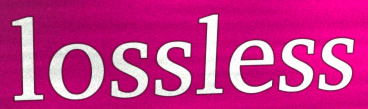
lossless